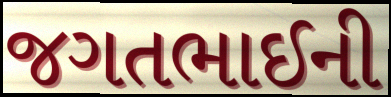
જગતભાઈની